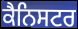
ਕੈਨਿਸਟਰ